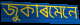
জুকাৰমেনে